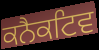
ਕਨੈਕਟਿਵ